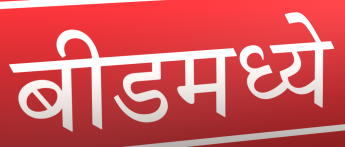
बीडमध्ये